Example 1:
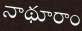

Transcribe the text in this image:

నాథూరాం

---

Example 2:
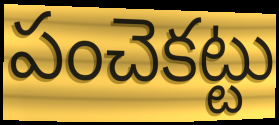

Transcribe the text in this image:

పంచెకట్టు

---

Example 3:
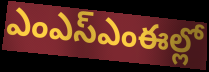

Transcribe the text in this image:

ఎంఎస్ఎంఈల్లో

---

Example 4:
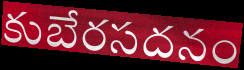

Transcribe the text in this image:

కుబేరసదనం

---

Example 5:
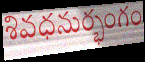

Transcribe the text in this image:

శివధనుర్భంగం